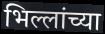
भिल्लांच्या